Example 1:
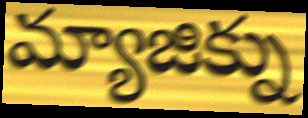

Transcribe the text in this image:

మ్యాజిక్ను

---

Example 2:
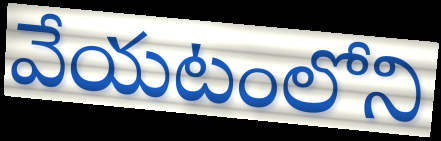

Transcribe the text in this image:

వేయటంలోని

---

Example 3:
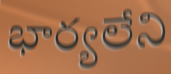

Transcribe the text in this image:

భార్యలేని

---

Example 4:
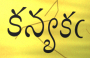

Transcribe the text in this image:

కన్యకఁ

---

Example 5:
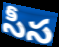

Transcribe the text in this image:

సీస